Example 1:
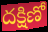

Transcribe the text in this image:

దక్షిణో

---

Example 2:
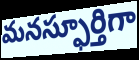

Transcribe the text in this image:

మనస్ఫూర్తిగా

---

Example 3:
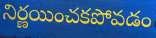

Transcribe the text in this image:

నిర్ణయించకపోవడం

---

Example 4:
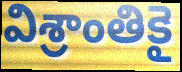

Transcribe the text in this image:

విశ్రాంతికై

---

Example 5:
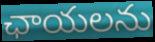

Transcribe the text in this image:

ఛాయలను